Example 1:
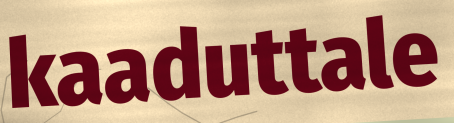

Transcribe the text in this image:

kaaduttale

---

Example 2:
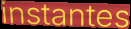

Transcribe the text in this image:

instantes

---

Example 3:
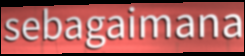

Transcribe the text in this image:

sebagaimana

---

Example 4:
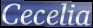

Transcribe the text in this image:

Cecelia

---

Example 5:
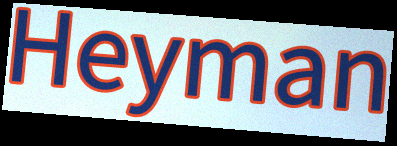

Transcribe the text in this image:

Heyman